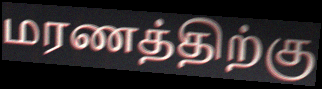
மரணத்திற்கு